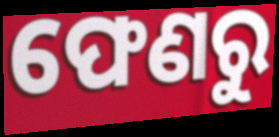
ଫେଣରୁ